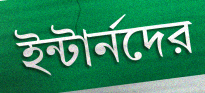
ইন্টার্নদের